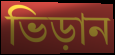
ভিড়ান